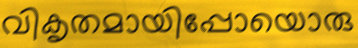
വികൃതമായിപ്പോയൊരു